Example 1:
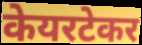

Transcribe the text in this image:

केयरटेकर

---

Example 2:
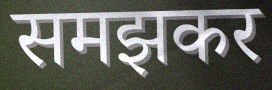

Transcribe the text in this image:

समझकर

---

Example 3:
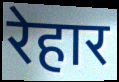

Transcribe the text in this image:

रेहार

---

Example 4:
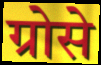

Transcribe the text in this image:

ग्रोसे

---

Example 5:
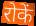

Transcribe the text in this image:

रोकें